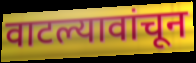
वाटल्यावांचून